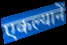
एकल्यानें